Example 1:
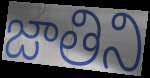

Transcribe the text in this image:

జాతిని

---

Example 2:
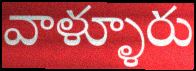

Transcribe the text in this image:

వాళ్ళూరు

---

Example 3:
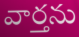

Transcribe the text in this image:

వార్తను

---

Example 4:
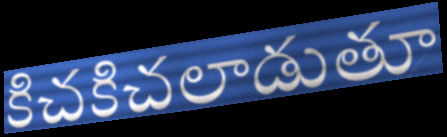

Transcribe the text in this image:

కిచకిచలాడుతూ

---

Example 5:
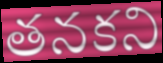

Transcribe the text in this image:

తనకని